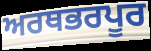
ਅਰਥਭਰਪੂਰ